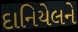
દાનિયેલને